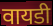
वायडी